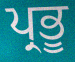
ਪ੍ਰਭੂ